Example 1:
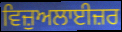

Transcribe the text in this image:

ਵਿਜ਼ੁਅਲਾਈਜ਼ਰ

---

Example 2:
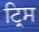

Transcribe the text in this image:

ਟ੍ਰਿਸ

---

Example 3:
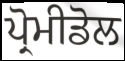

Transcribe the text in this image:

ਪ੍ਰੋਮੀਡੋਲ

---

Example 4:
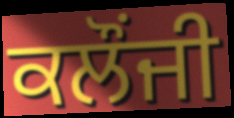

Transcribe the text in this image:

ਕਲੌਂਜੀ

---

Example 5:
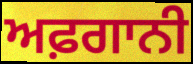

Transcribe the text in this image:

ਅਫ਼ਗਾਨੀ